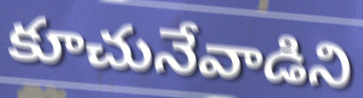
కూచునేవాడిని